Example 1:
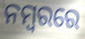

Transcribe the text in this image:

ନମ୍ବରରେ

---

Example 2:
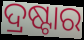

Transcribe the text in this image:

ଦ୍ରଷ୍ଟାର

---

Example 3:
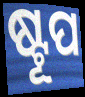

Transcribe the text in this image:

ଷ୍ଟୂପ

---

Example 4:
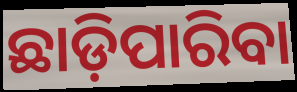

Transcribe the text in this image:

ଛାଡ଼ିପାରିବା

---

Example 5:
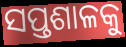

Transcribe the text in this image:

ସପ୍ତଶାଳକୁ